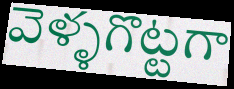
వెళ్ళగొట్టగా